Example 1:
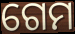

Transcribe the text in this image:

ଗେମ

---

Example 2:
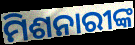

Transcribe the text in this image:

ମିଶନାରୀଙ୍କ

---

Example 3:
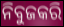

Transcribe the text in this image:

ନିବୁଜକରି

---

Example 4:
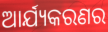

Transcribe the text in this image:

ଆର୍ଯ୍ୟକରଣର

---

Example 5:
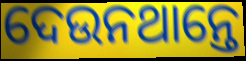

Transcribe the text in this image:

ଦେଉନଥାନ୍ତେ